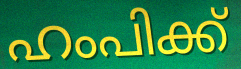
ഹംപിക്ക്